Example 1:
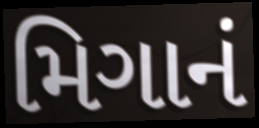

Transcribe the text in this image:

મિગાનં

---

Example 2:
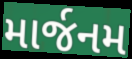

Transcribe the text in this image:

માર્જનમ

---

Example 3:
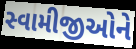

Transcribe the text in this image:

સ્વામીજીઓને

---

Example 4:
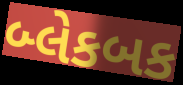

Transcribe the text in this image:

બ્લેકબક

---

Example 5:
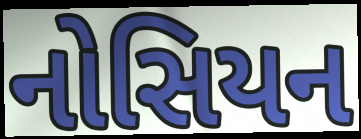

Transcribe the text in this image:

નોસિયન